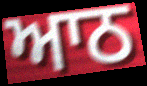
ਆਠ